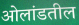
ओलांडतील